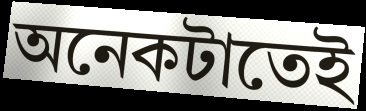
অনেকটাতেই